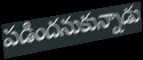
పడిందనుకున్నాడు